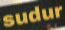
sudur